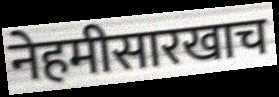
नेहमीसारखाच